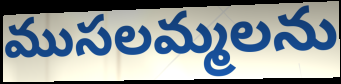
ముసలమ్మలను